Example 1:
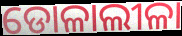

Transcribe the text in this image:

ଡୋଳାଲୀଳା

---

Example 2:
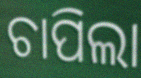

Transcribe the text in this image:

ଚାପିଲା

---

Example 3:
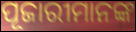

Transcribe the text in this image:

ପୂଜାରୀମାନଙ୍କ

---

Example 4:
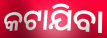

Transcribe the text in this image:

କଟାଯିବା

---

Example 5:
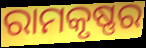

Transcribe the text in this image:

ରାମକୃଷ୍ଣର